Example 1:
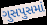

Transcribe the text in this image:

ગુસપુસમાં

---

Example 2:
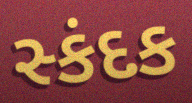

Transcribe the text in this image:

સ્કંદક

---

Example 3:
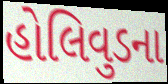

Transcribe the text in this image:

હોલિવુડના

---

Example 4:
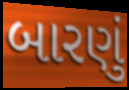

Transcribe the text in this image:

બારણું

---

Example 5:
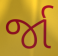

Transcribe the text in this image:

ર્જા